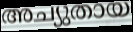
അച്യുതായ